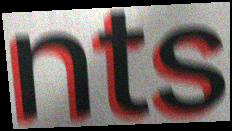
nts